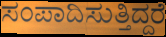
ಸಂಪಾದಿಸುತ್ತಿದ್ದರೆ